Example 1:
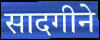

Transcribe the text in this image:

सादगीने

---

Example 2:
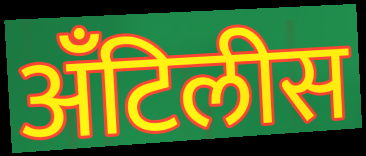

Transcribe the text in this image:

अँटिलीस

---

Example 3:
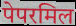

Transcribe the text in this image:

पेपरमिल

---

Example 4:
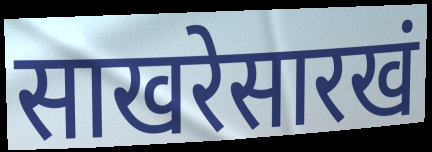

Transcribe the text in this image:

साखरेसारखं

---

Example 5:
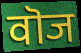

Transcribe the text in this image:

वॊज